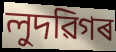
লুদৱিগৰ